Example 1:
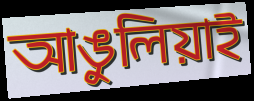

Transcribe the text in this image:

আঙুলিয়াই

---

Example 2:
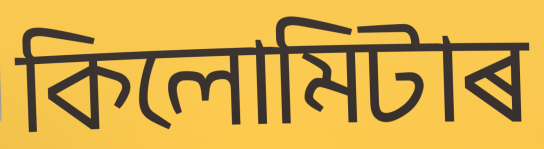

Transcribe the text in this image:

কিলোমিটাৰ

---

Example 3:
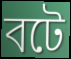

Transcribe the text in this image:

বটে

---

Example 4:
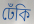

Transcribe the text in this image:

ঢেঁকি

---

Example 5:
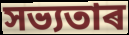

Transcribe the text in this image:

সভ্যতাৰ